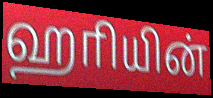
ஹரியின்